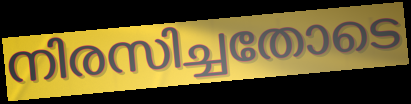
നിരസിച്ചതോടെ